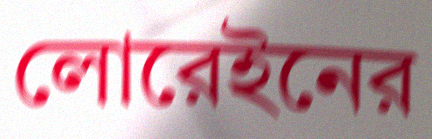
লোরেইনের